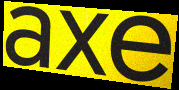
axe